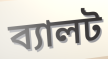
ব্যালট